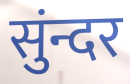
सुंन्दर